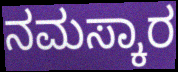
ನಮಸ್ಕಾರ